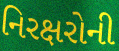
નિરક્ષરોની